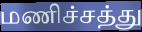
மணிச்சத்து